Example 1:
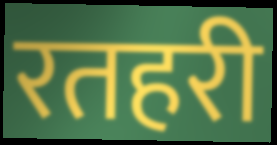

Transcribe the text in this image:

रतहरी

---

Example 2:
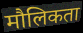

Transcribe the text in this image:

मौलिकता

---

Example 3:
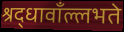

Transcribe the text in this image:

श्रद्धावाँल्लभते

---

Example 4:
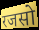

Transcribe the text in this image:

रजसो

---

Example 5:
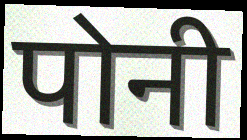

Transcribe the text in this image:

पोनी